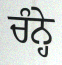
ਚੰਨ੍ਹੇ